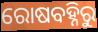
ରୋଷବହ୍ନିରୁ